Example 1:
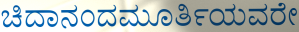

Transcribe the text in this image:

ಚಿದಾನಂದಮೂರ್ತಿಯವರೇ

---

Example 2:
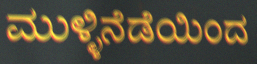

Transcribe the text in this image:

ಮುಳ್ಳಿನೆಡೆಯಿಂದ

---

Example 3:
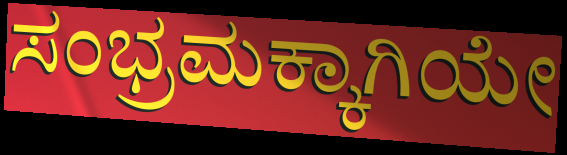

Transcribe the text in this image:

ಸಂಭ್ರಮಕ್ಕಾಗಿಯೇ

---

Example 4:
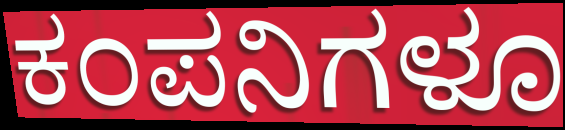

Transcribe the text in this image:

ಕಂಪನಿಗಳೂ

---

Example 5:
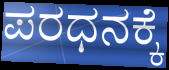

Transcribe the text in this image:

ಪರಧನಕ್ಕೆ